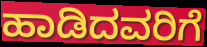
ಹಾಡಿದವರಿಗೆ